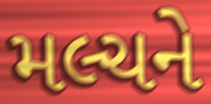
મલ્ચને